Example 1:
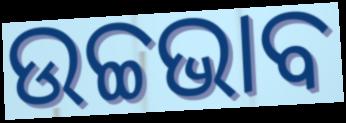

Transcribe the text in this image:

ଉଚ୍ଚଭାବ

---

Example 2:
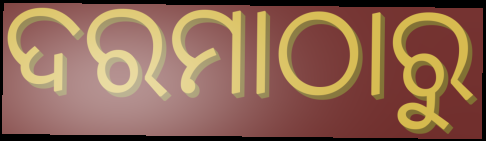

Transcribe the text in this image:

ଦରମାଠାରୁ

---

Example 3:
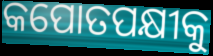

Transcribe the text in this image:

କପୋତପକ୍ଷୀକୁ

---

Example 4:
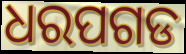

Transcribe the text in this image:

ଧରପଗଡ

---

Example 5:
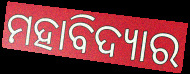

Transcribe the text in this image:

ମହାବିଦ୍ୟାର